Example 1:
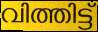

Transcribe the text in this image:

വിത്തിട്ട്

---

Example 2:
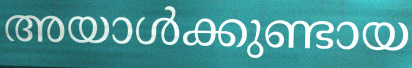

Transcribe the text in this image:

അയാൾക്കുണ്ടായ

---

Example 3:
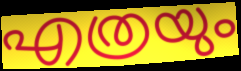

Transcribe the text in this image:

എത്രയും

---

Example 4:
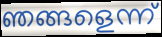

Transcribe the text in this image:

ഞങ്ങളെന്ന്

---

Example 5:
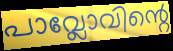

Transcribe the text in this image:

പാവ്ലോവിന്റെ